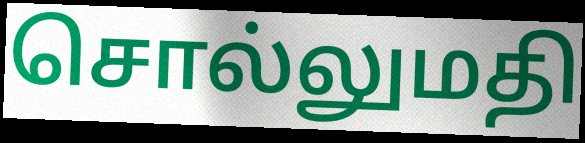
சொல்லுமதி